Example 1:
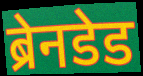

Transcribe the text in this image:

ब्रेनडेड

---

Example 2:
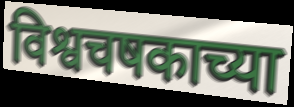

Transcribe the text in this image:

विश्वचषकाच्या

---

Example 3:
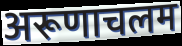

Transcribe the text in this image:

अरूणाचलम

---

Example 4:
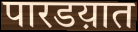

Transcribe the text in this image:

पारडय़ात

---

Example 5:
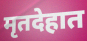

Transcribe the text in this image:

मृतदेहात